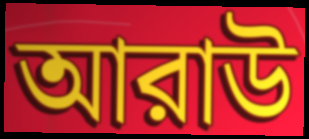
আরাউ